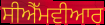
ਸੀਐੱਮਵੀਆਰ